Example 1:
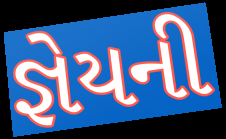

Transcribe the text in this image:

જ્ઞેયની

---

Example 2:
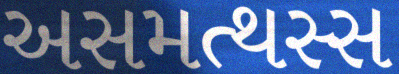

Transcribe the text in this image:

અસમત્થસ્સ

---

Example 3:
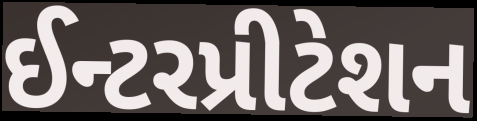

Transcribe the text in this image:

ઈન્ટરપ્રીટેશન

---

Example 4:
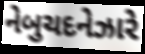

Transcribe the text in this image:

નેબુચદનેઝારે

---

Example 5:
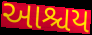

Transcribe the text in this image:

આશ્ચય